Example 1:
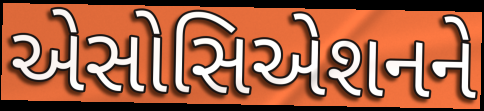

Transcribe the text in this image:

એસોસિએશનને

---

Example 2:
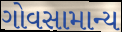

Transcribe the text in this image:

ગોવસામાન્ય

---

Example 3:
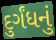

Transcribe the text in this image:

દુર્ગંધનું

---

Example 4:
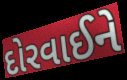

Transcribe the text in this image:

દોરવાઈને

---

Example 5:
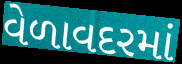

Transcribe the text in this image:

વેળાવદરમાં